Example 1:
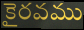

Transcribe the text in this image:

కైరవము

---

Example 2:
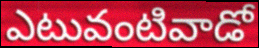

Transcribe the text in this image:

ఎటువంటివాడో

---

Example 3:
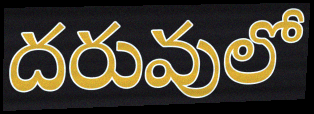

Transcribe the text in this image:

దరువులో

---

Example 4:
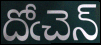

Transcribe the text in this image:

దోఁచెన్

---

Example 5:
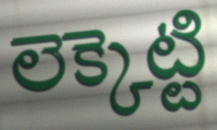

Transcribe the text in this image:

లెక్కెట్టి